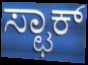
ಸ್ಟಾಕ್